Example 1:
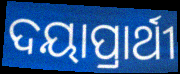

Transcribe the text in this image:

ଦୟାପ୍ରାର୍ଥୀ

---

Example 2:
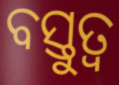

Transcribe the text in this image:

ବସ୍ତୁତ୍ବ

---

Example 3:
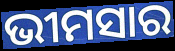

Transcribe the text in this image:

ଭୀମସାର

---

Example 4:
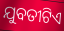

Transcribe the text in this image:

ଯୁବତୀଟିଏ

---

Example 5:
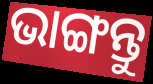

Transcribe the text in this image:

ଭାଙ୍ଗନ୍ତୁ